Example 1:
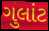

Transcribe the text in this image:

ગુલાંટ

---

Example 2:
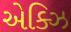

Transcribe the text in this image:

એક્ઝિ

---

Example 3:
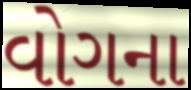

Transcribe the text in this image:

વોગના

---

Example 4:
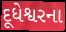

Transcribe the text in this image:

દૂધેશ્વરના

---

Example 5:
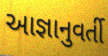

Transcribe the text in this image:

આજ્ઞાનુવર્તી